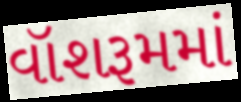
વૉશરૂમમાં